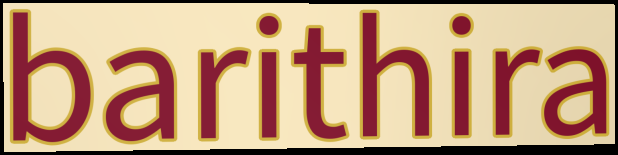
barithira